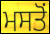
ਮਸਤੋਂ